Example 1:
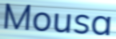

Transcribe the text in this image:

Mousa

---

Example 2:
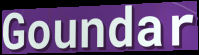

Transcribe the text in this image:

Goundar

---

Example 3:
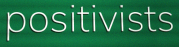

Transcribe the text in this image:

positivists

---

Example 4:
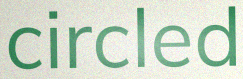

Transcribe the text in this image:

circled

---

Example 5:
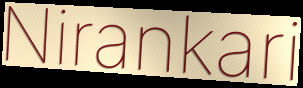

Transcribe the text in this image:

Nirankari